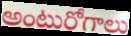
అంటురోగాలు